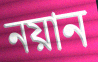
নয়ান